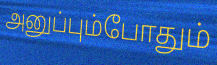
அனுப்பும்போதும்